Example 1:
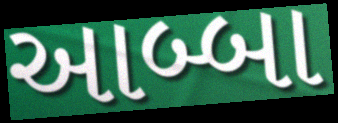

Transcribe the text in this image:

આબ્બા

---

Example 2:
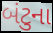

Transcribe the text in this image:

બંટુના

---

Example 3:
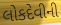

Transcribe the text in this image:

લોકદેવીની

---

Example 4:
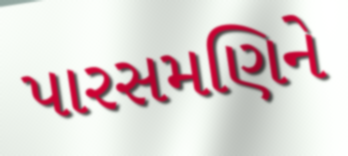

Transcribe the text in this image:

પારસમણિને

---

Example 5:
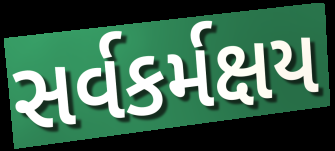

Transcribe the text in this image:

સર્વકર્મક્ષય